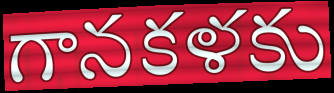
గానకళకు